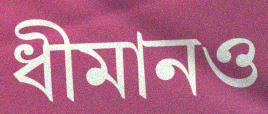
ধীমানও